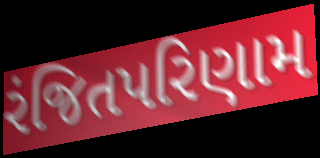
રંજિતપરિણામ